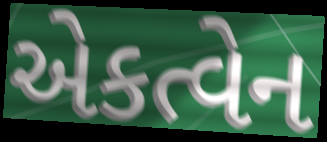
એકત્વેન